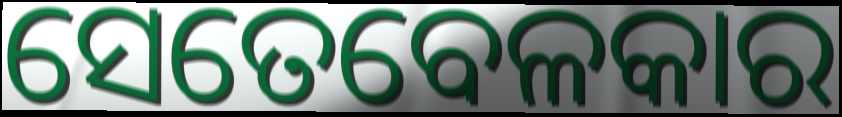
ସେତେବେଳକାର